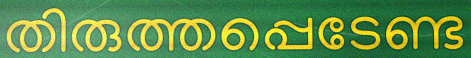
തിരുത്തപ്പെടേണ്ട